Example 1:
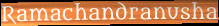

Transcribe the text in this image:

Ramachandranusha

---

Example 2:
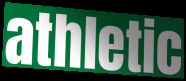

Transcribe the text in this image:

athletic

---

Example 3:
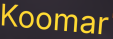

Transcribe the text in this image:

Koomar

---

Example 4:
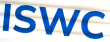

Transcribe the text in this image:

ISWC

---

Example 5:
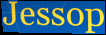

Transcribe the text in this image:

Jessop